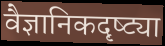
वैज्ञानिकदृष्ट्या